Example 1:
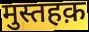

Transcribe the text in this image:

मुस्तहक़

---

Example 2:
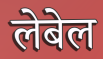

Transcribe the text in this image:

लेबेल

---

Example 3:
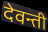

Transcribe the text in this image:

देवन्ती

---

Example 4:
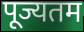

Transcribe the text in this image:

पूज्यतम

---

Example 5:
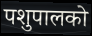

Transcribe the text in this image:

पशुपालको